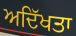
ਅਦਿੱਖਤਾ